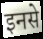
इनसे